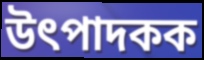
উৎপাদকক